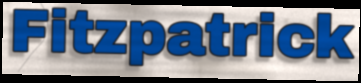
Fitzpatrick